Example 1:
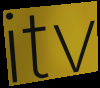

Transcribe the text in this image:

itv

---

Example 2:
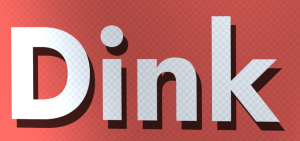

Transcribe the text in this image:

Dink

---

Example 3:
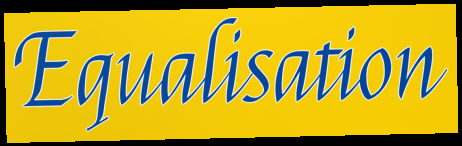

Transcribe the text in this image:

Equalisation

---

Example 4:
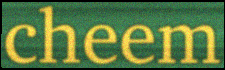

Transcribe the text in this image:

cheem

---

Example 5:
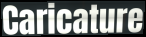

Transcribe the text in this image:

Caricature